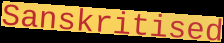
Sanskritised